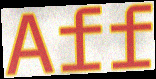
Aff